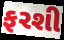
ફરશી